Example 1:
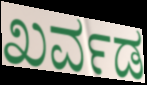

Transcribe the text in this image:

ಖರ್ವಡ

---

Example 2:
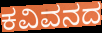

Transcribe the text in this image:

ಕವಿವನದ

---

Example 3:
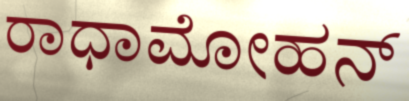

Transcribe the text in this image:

ರಾಧಾಮೋಹನ್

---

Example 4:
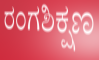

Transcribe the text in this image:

ರಂಗಶಿಕ್ಷಣ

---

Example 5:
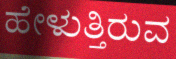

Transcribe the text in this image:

ಹೇಳುತ್ತಿರುವ